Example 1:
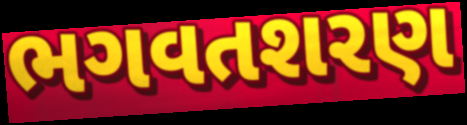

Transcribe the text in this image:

ભગવતશરણ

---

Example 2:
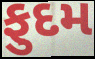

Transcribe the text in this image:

ફુદમ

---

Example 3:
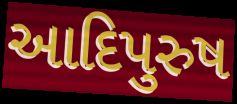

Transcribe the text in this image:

આદિપુરુષ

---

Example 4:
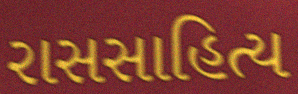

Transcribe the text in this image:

રાસસાહિત્ય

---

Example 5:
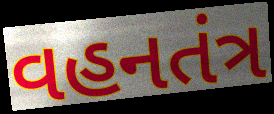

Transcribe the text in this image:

વહનતંત્ર